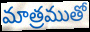
మాత్రముతో